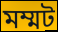
মম্মট